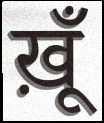
ख़ूँ